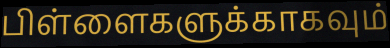
பிள்ளைகளுக்காகவும்